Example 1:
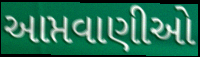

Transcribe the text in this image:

આપ્તવાણીઓ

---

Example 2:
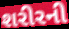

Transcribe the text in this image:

શરીરની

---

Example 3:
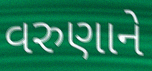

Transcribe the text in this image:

વરુણાને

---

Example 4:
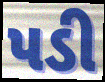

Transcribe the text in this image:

પડી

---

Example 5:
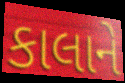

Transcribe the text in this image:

કાલાને